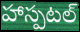
హాస్పటల్